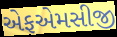
એફએમસીજી